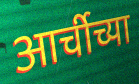
आर्चीच्या